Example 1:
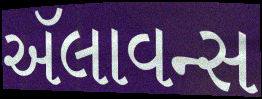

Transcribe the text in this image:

ઍલાવન્સ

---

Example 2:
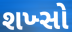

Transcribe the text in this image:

શખ્સો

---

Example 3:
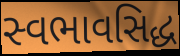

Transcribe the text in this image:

સ્વભાવસિદ્ધ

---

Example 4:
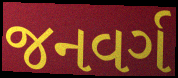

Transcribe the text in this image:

જનવર્ગ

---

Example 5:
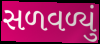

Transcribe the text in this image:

સળવળ્યું